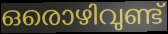
ഒരൊഴിവുണ്ട്